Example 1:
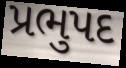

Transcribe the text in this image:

પ્રભુપદ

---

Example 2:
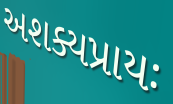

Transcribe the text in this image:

અશક્યપ્રાયઃ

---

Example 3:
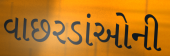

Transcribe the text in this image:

વાછરડાંઓની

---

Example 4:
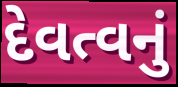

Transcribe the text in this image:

દેવત્વનું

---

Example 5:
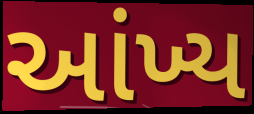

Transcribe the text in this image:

આંખ્ય